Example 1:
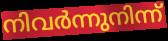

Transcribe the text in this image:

നിവർന്നുനിന്ന്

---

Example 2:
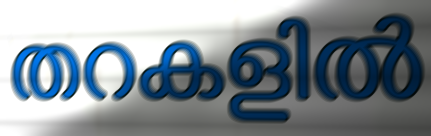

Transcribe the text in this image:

തറകളിൽ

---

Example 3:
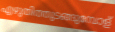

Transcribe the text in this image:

എഴുതിത്തുടങ്ങുമ്പോള്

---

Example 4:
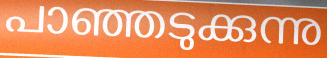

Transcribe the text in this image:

പാഞ്ഞടുക്കുന്നു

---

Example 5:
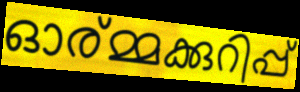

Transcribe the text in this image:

ഓര്മ്മക്കുറിപ്പ്